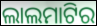
ଲାଲମାଟିର